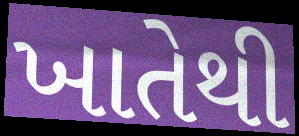
ખાતેથી